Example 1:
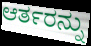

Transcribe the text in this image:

ಆರ್ತರನ್ನು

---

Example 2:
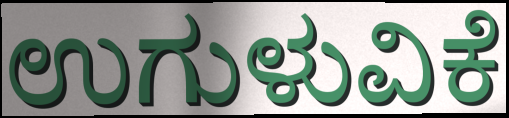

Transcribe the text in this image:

ಉಗುಳುವಿಕೆ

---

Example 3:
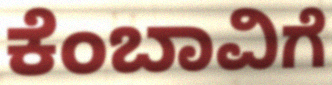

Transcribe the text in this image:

ಕೆಂಬಾವಿಗೆ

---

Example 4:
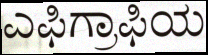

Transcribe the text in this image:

ಎಫಿಗ್ರಾಫಿಯ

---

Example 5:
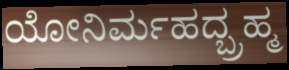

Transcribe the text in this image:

ಯೋನಿರ್ಮಹದ್ಬ್ರಹ್ಮ